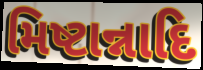
મિષ્ટાન્નાદિ